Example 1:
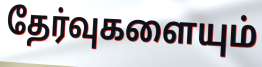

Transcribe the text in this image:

தேர்வுகளையும்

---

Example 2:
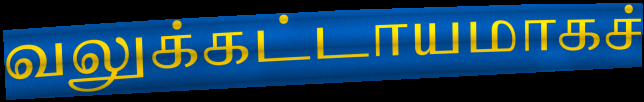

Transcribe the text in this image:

வலுக்கட்டாயமாகச்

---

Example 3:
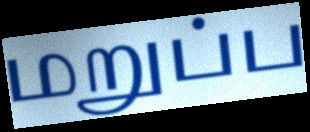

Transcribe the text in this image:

மறுப்ப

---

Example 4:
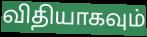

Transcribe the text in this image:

விதியாகவும்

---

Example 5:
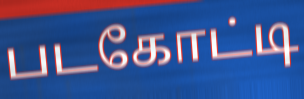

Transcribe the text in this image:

படகோட்டி